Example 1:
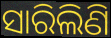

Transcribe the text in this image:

ସାରିଲିଣି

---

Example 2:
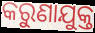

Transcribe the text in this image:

କରୁଣାଯୁକ୍ତ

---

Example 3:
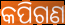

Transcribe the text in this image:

କପିଗଣ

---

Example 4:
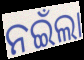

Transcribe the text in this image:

ନଇଁଲା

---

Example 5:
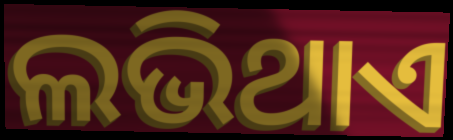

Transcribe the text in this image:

ଲଭିଥାଏ